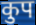
कुप